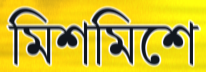
মিশমিশে